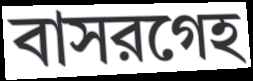
বাসরগেহ